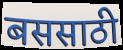
बससाठी